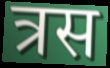
त्रस